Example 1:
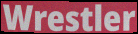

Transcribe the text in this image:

Wrestler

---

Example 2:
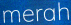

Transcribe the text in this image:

merah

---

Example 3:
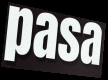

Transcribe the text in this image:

pasa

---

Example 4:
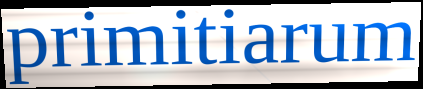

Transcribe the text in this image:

primitiarum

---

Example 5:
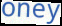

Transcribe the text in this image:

oney